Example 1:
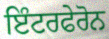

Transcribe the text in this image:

ਇੰਟਰਫੇਰੋਨ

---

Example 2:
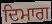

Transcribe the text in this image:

ਦਿਮਾਗ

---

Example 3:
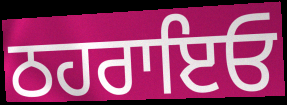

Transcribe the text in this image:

ਠਹਰਾਇਓ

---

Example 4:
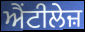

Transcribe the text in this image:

ਐਂਟੀਲੇਜ਼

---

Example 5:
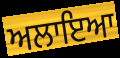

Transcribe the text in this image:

ਅਲਾਇਆ